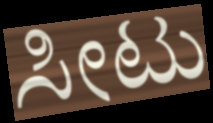
ಸೀಟು